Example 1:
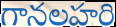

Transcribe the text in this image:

గానలహరి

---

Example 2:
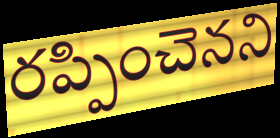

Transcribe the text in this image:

రప్పించెనని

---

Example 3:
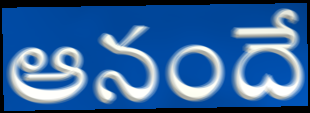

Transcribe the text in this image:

ఆనందే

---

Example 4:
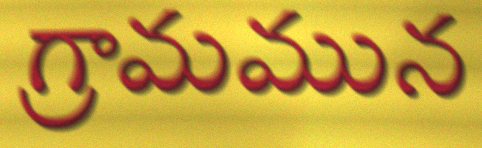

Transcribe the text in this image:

గ్రామమున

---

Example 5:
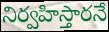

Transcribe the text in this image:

నిర్వహిస్తారనే